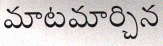
మాటమార్చిన